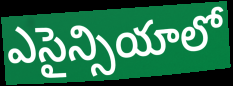
ఎసైన్సియాలో